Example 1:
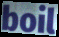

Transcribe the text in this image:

boil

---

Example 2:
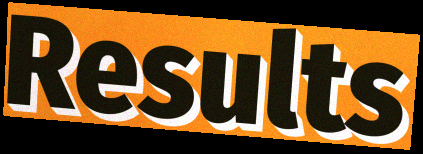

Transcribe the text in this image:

Results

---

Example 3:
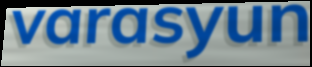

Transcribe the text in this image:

varasyun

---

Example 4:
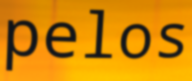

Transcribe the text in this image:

pelos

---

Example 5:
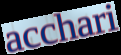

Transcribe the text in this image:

acchari